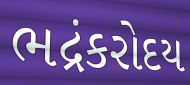
ભદ્રંકરોદય